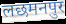
लछमनपुर